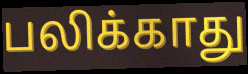
பலிக்காது